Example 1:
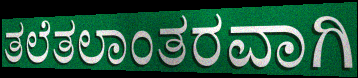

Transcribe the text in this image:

ತಲೆತಲಾಂತರವಾಗಿ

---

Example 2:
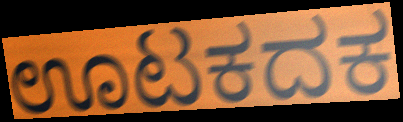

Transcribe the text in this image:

ಊಟಕದಕ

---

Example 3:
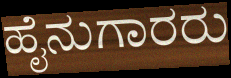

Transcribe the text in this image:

ಹೈನುಗಾರರು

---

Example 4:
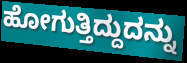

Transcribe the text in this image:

ಹೋಗುತ್ತಿದ್ದುದನ್ನು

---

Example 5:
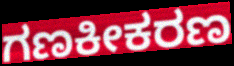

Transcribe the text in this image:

ಗಣಕೀಕರಣ